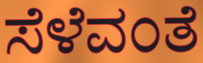
ಸೆಳೆವಂತೆ